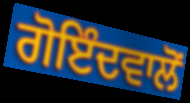
ਗੋਇੰਦਵਾਲੋਂ